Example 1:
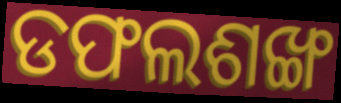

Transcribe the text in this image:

ଡଫଲଶଙ୍ଖ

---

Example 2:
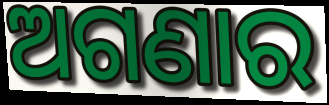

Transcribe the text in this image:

ଅଗଣାର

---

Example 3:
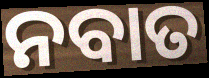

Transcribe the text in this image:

ନବାତ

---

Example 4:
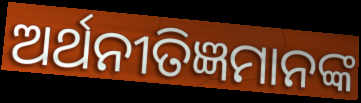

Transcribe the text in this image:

ଅର୍ଥନୀତିଜ୍ଞମାନଙ୍କ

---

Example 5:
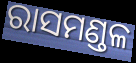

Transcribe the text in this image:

ରାସମଣ୍ଡଳ